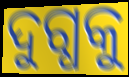
ଦୁଗ୍ଧକୁ